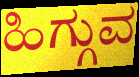
ಹಿಗ್ಗುವ